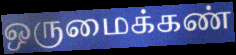
ஒருமைக்கண்